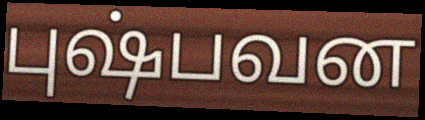
புஷ்பவன